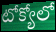
టోక్యోలో